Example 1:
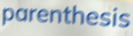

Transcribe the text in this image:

parenthesis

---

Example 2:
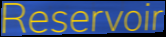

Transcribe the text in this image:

Reservoir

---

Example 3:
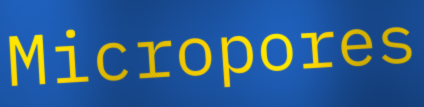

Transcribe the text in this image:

Micropores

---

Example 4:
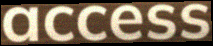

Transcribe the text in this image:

access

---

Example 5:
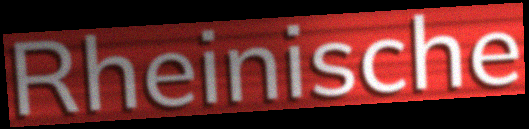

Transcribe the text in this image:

Rheinische